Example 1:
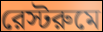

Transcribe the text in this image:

রেস্টরুমে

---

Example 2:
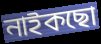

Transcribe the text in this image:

নাইকছো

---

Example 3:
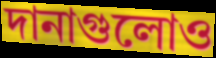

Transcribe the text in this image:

দানাগুলোও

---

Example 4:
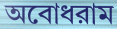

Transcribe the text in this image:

অবোধরাম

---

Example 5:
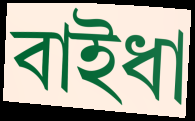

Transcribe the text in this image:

বাইধা